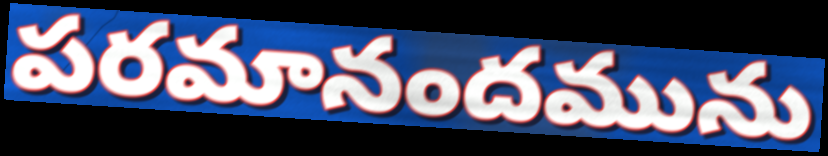
పరమానందమును